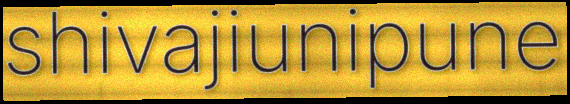
shivajiunipune